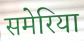
समेरिया